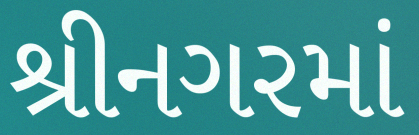
શ્રીનગરમાં